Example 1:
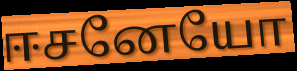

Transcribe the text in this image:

ஈசனேயோ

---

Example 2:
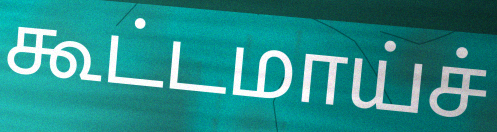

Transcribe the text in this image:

கூட்டமாய்ச்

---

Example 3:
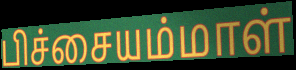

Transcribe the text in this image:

பிச்சையம்மாள்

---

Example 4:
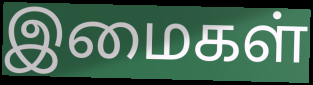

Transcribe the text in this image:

இமைகள்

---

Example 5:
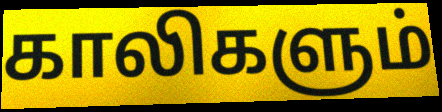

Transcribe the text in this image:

காலிகளும்